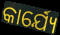
କାର୍ଯ୍ୟେ